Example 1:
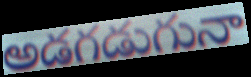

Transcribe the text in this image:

అడగడుగునా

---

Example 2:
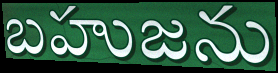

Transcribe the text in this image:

బహుజను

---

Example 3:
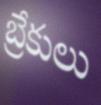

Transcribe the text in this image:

బ్రేకులు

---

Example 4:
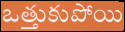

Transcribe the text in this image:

ఒత్తుకుపోయి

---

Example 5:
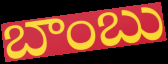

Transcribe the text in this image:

బాంబు